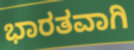
ಭಾರತವಾಗಿ